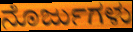
ನೊರ್ಜುಗಳು